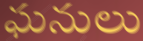
ఘనులు